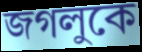
জগলুকে